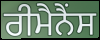
ਰੀਮੈਨੈਂਸ